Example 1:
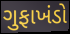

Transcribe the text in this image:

ગુફાખંડો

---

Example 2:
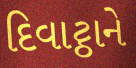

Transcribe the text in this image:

દિવાટ્ઠાને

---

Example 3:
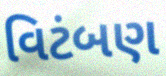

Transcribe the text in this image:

વિટંબણ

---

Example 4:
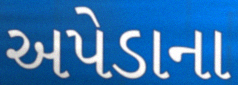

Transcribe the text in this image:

અપેડાના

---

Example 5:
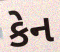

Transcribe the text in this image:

કેન